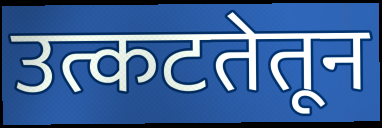
उत्कटतेतून